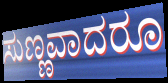
ಸುಣ್ಣವಾದರೂ